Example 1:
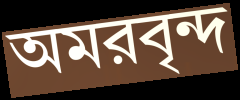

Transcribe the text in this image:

অমরবৃন্দ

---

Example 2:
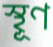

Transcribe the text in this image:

স্থূণ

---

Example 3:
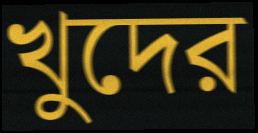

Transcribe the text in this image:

খুদের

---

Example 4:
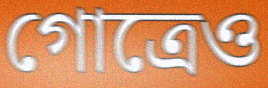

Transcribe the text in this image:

গোত্রেও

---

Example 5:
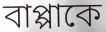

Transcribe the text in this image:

বাপ্পাকে